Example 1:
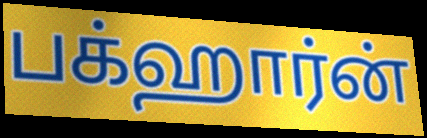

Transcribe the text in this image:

பக்ஹார்ன்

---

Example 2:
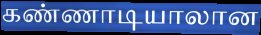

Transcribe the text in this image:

கண்ணாடியாலான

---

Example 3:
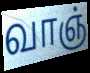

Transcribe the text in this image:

வாஞ்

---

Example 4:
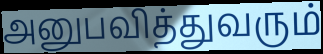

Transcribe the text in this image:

அனுபவித்துவரும்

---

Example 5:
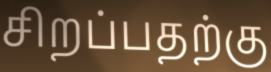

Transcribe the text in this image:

சிறப்பதற்கு